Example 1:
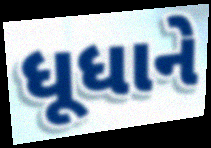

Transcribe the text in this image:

ધૂધાને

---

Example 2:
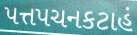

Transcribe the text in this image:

પત્તપચનકટાહં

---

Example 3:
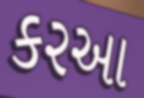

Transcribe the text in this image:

કરઆ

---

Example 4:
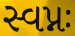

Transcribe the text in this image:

સ્વપ્નઃ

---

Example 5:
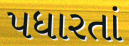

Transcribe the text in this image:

પધારતાં